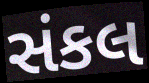
સંકલ